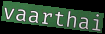
vaarthai